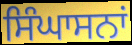
ਸਿੰਘਾਸਨਾਂ